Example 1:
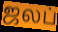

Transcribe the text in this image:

ஜலப்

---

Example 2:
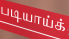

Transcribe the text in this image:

படியாய்க்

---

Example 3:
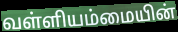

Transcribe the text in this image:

வள்ளியம்மையின்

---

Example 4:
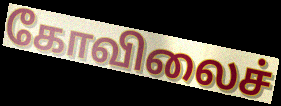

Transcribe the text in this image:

கோவிலைச்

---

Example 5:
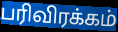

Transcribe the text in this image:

பரிவிரக்கம்